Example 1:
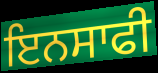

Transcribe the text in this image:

ਇਨਸਾਫੀ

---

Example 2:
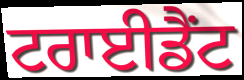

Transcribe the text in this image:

ਟਰਾਈਡੈਂਟ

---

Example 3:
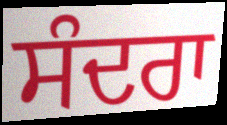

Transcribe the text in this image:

ਸੰਦਰਾ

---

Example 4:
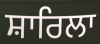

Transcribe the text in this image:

ਸ਼ਾਰਿਲਾ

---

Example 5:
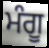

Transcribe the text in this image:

ਮੰਗੂ